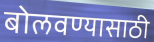
बोलवण्यासाठी